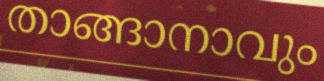
താങ്ങാനാവും